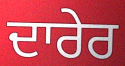
ਦਾਰੇਰ